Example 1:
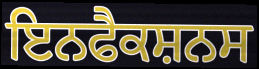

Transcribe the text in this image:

ਇਨਫੈਕਸ਼ਨਸ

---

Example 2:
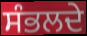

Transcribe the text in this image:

ਸੰਭਲਦੇ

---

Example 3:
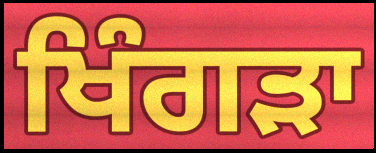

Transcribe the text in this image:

ਖਿੰਗੜਾ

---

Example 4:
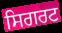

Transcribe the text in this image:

ਸਿਗਰਟ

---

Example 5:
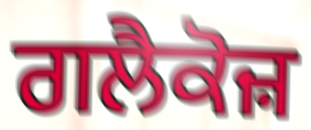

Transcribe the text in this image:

ਗਲੈਕੋਜ਼